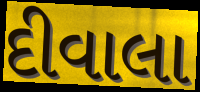
દીવાલા